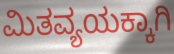
ಮಿತವ್ಯಯಕ್ಕಾಗಿ